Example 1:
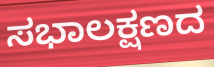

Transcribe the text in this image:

ಸಭಾಲಕ್ಷಣದ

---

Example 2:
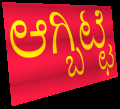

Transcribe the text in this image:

ಆಗ್ಬಿಟ್ಟೆ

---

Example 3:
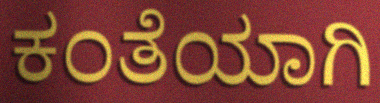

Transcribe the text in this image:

ಕಂತೆಯಾಗಿ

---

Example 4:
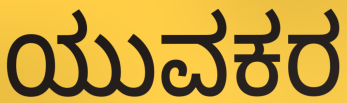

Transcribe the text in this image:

ಯುವಕರ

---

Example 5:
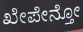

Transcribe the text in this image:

ಖೇಪೇನ್ತೋ